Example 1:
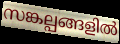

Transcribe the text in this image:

സങ്കല്പങ്ങളിൽ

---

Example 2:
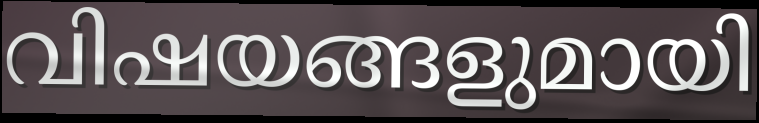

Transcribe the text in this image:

വിഷയങ്ങളുമായി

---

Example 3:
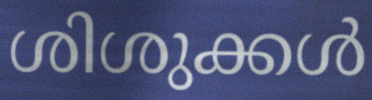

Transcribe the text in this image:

ശിശുക്കൾ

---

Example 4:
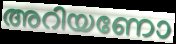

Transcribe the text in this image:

അറിയണോ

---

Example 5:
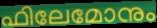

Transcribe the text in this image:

ഫിലേമോനും